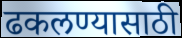
ढकलण्यासाठी